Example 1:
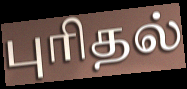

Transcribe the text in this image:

புரிதல்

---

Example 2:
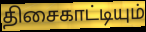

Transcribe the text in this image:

திசைகாட்டியும்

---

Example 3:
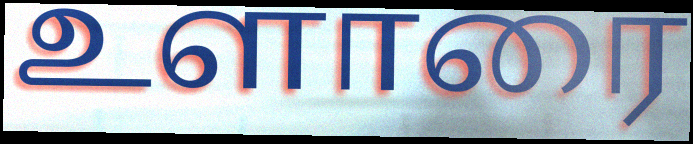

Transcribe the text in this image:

உளாரை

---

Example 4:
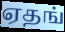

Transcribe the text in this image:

ஏதங்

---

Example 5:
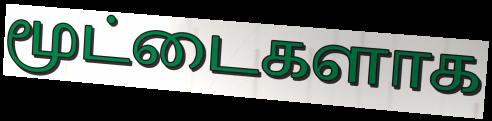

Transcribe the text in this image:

மூட்டைகளாக